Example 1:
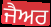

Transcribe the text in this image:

ਜੈਅਰ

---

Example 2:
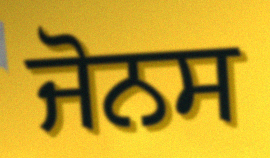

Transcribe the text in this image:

ਜੋਨਸ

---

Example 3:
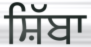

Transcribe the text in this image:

ਸ਼ਿੱਬਾ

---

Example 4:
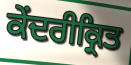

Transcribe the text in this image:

ਕੇਂਦਰੀਕ੍ਰਿਤ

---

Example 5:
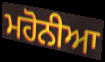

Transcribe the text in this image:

ਮਹੋਨੀਆ